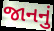
જાનનું